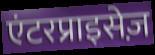
एंटरप्राइसेज़